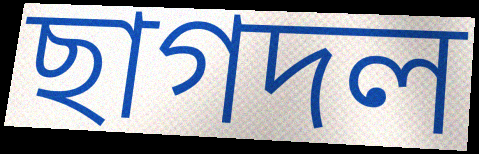
ছাগদল